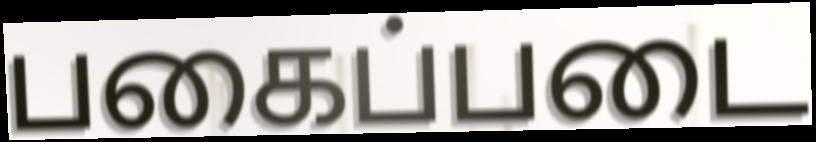
பகைப்படை